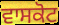
ਵਾਸਕੋਟ